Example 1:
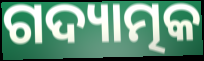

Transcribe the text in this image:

ଗଦ୍ୟାତ୍ମକ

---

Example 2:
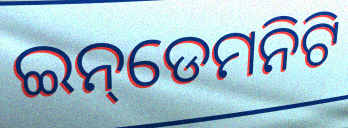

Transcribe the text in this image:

ଇନ୍‌ଡେମନିଟି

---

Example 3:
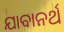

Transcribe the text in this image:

ଯାବାନର୍ଥ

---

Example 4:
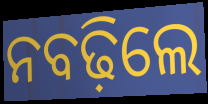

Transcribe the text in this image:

ନବଢ଼ିଲେ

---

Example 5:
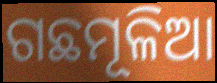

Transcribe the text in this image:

ଗଛମୂଳିଆ